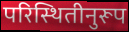
परिस्थितीनुरूप